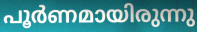
പൂർണമായിരുന്നു